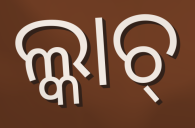
ଲ୍କାଚ୍